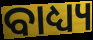
ବାଧ୍ୟ୍ୟ